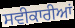
ਸਵੀਕਾਰੀਆਂ